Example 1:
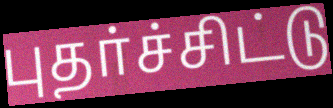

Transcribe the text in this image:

புதர்ச்சிட்டு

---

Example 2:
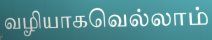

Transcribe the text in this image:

வழியாகவெல்லாம்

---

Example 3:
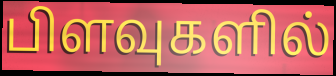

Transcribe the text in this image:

பிளவுகளில்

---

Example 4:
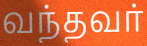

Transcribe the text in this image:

வந்தவர்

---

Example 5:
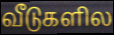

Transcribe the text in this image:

வீடுகளில